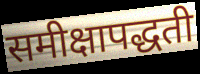
समीक्षापद्धती